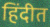
हिंदीत